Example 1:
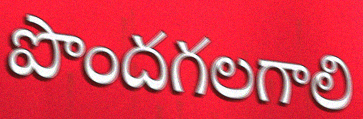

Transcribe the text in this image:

పొందగలగాలి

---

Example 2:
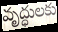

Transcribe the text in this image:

వృద్ధులకు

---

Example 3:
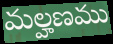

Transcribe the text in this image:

మల్హణము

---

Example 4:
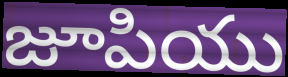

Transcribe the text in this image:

జూపియు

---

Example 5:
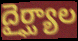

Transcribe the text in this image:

దైర్ఘ్యాల